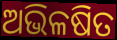
ଅଭିଳଷିତ